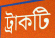
ট্রাকটি